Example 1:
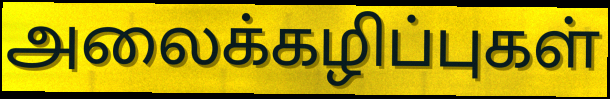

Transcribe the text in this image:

அலைக்கழிப்புகள்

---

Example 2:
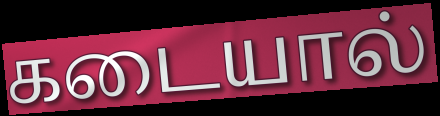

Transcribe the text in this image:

கடையால்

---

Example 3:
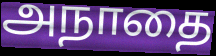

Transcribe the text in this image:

அநாதை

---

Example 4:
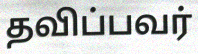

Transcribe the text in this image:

தவிப்பவர்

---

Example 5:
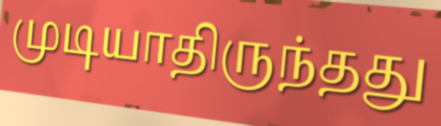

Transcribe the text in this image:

முடியாதிருந்தது